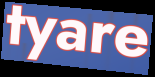
tyare